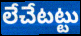
లేచేటట్టు